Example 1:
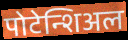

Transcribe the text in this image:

पोटेन्शिअल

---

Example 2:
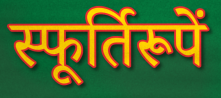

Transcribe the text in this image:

स्फूर्तिरूपें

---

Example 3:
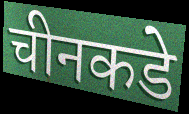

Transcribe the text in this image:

चीनकडे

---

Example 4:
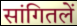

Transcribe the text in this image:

सांगितलें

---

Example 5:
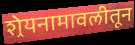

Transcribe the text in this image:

श्रेयनामावलीतून